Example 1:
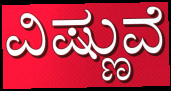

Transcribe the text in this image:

ವಿಷ್ಣುವೆ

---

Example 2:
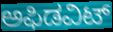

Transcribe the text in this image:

ಅಫಿಡವಿಟ್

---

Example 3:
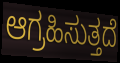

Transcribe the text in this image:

ಆಗ್ರಹಿಸುತ್ತದೆ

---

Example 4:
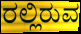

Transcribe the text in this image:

ರಲ್ಲಿರುವ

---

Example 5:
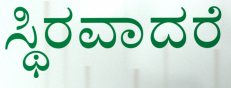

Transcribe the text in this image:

ಸ್ಥಿರವಾದರೆ